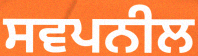
ਸਵਪਨੀਲ